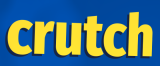
crutch